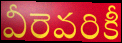
వీరెవరికీ